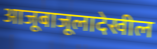
आजूबाजूलादेखील